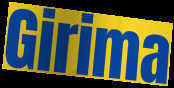
Girima